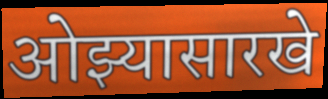
ओझ्यासारखे